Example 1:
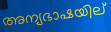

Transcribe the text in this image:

അന്യഭാഷയില്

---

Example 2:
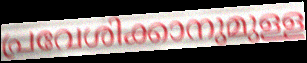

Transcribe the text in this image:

പ്രവേശിക്കാനുമുള്ള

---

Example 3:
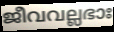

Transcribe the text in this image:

ജീവവല്ലഭാഃ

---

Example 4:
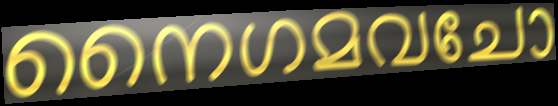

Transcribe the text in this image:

നൈഗമവചോ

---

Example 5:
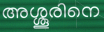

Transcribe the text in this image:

അശ്ശൂരിനെ